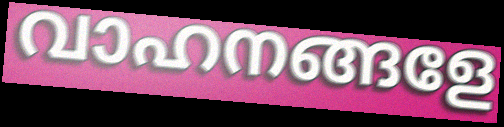
വാഹനങ്ങളേ